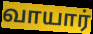
வாயார்